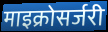
माइक्रोसर्जरी